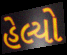
હેલ્યો